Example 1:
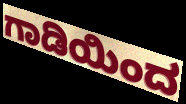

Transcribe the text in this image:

ಗಾಡಿಯಿಂದ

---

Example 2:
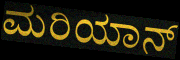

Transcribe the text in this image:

ಮರಿಯಾನ್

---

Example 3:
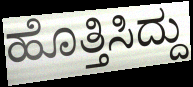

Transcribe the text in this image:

ಹೊತ್ತಿಸಿದ್ದು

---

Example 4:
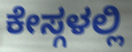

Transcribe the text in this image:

ಕೇಸ್ಗಳಲ್ಲಿ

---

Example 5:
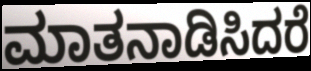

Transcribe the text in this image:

ಮಾತನಾಡಿಸಿದರೆ